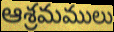
ఆశ్రమములు